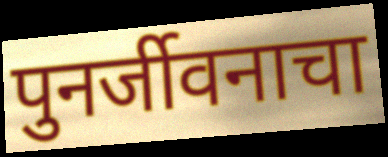
पुनर्जीवनाचा